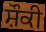
ਸ਼ੌਕੀ